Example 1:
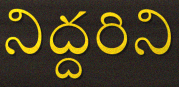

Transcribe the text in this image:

నిద్దరిని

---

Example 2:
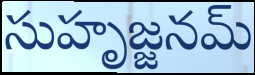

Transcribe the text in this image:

సుహృజ్జనమ్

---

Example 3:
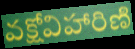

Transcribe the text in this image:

వక్షోవిహారిణి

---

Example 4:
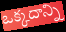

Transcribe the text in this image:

ఒక్కదాన్ని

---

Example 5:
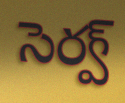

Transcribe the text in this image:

సెర్వ్